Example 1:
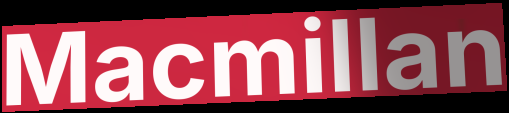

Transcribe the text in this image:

Macmillan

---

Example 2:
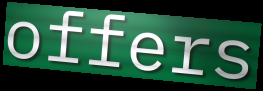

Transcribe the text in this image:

offers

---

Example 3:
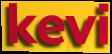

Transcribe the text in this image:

kevi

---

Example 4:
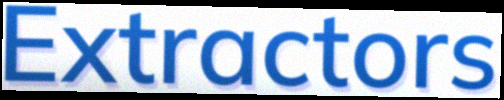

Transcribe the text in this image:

Extractors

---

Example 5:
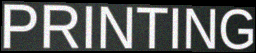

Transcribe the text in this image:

PRINTING